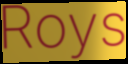
Roys